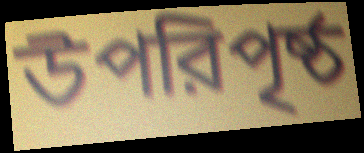
উপরিপৃষ্ঠ